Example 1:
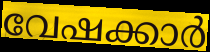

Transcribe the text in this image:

വേഷക്കാർ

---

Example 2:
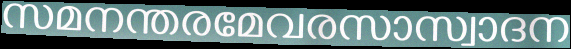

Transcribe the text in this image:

സമനന്തരമേവരസാസ്വാദന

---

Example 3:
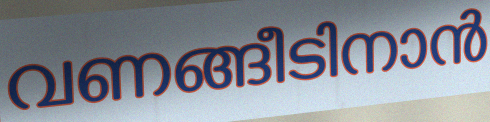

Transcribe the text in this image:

വണങ്ങീടിനാൻ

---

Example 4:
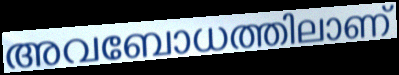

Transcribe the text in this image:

അവബോധത്തിലാണ്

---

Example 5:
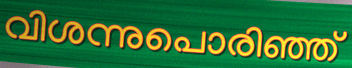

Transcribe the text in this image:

വിശന്നുപൊരിഞ്ഞ്